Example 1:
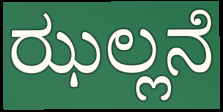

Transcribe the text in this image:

ಝಲ್ಲನೆ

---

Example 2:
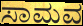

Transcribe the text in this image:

ಸಾಮವ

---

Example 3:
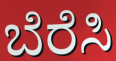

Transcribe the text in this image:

ಬೆರೆಸಿ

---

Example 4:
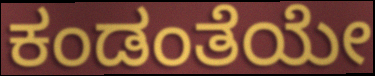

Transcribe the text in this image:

ಕಂಡಂತೆಯೇ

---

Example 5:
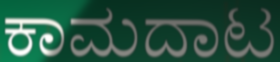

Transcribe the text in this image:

ಕಾಮದಾಟ